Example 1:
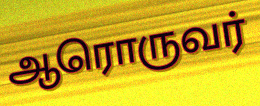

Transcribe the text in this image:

ஆரொருவர்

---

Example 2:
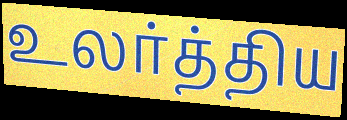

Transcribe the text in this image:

உலர்த்திய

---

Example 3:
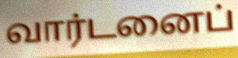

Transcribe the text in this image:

வார்டனைப்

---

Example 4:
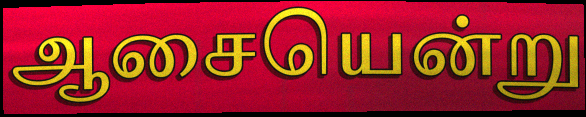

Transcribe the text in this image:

ஆசையென்று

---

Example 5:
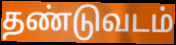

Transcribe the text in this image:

தண்டுவடம்